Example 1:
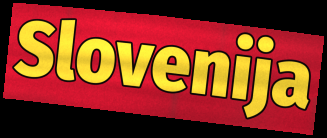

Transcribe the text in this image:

Slovenija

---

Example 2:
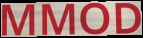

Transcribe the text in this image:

MMOD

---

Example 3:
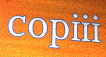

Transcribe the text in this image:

copiii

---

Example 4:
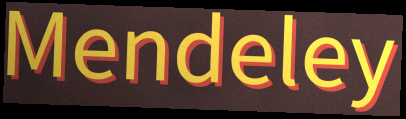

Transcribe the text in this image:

Mendeley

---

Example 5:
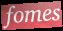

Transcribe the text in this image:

fomes